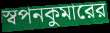
স্বপনকুমারের